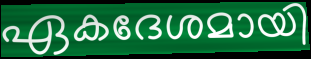
ഏകദേശമായി